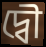
দ্বৌ